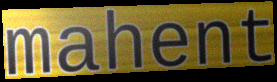
mahent